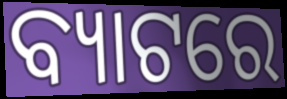
ବ୍ୟାଟରେ